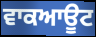
ਵਾਕਆਊਟ